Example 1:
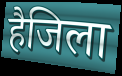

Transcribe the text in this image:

हैजिला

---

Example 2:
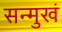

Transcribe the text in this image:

सन्मुखं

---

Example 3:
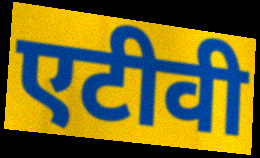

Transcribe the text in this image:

एटीवी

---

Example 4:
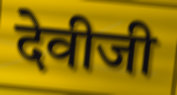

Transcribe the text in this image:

देवीजी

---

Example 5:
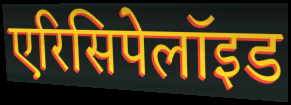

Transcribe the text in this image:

एरिसिपेलॉइड